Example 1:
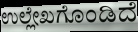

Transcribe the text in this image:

ಉಲ್ಲೇಖಗೊಂಡಿದೆ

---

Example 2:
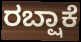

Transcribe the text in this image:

ರಬ್ಷಾಕೆ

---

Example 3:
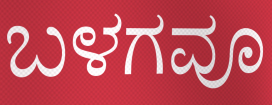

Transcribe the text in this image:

ಬಳಗವೂ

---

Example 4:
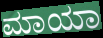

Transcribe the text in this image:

ಮಾಯಾ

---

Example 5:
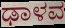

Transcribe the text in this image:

ಢಾಳವ